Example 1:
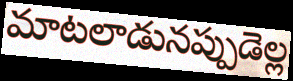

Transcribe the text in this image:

మాటలాడునప్పుడెల్ల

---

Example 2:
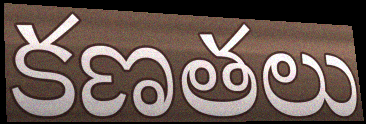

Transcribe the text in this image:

కణతలు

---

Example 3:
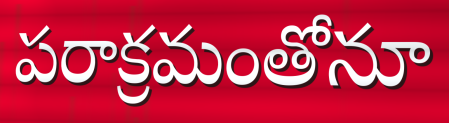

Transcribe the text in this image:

పరాక్రమంతోనూ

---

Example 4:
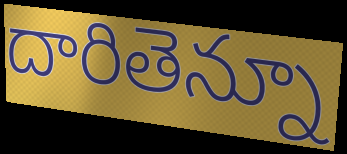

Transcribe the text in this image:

దారితెన్నూ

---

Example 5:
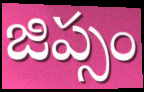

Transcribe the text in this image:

జిప్సం